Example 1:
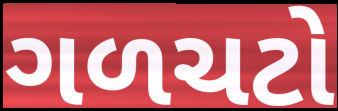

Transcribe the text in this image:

ગળચટો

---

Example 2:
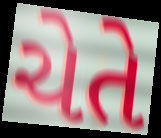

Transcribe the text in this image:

ચેતે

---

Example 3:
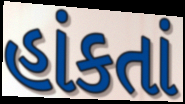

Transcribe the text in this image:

હાંકતાં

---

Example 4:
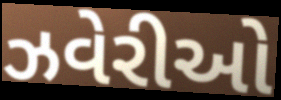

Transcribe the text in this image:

ઝવેરીઓ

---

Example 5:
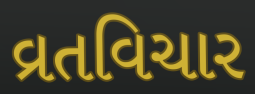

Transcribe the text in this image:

વ્રતવિચાર